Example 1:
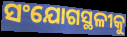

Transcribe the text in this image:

ସଂଯୋଗସ୍ଥଳୀକୁ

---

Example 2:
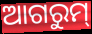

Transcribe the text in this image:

ଆଗରୁମ୍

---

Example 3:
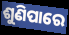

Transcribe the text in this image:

ଶୁଣିପାରେ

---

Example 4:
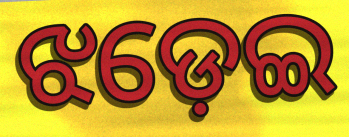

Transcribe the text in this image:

ଝଡ଼େଇ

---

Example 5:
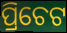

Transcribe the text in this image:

ପ୍ରିଚେଟ